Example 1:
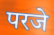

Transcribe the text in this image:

परजे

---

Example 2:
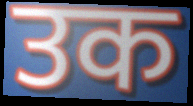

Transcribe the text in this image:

उक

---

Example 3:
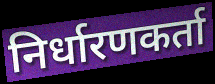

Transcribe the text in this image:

निर्धारणकर्ता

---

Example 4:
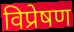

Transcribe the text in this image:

विप्रेषण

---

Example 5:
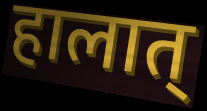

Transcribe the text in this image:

हालात्